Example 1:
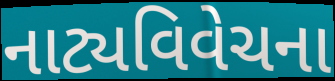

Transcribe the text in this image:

નાટ્યવિવેચના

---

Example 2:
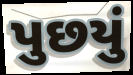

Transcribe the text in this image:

પુછયું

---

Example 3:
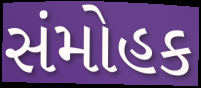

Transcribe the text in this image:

સંમોહક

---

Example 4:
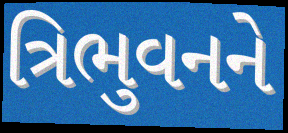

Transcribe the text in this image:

ત્રિભુવનને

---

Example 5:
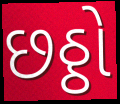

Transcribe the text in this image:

છઠ્ઠો